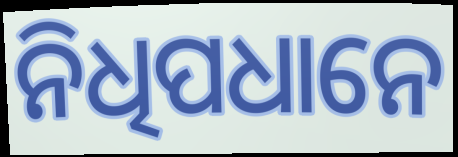
ନିଧିପଧାନେ